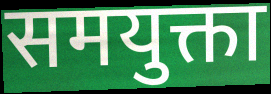
समयुक्ता